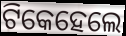
ଟିକେହେଲେ